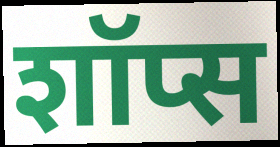
शॉप्स